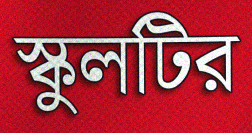
স্কুলটির